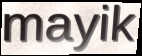
mayik